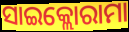
ସାଇକ୍ଲୋରାମା